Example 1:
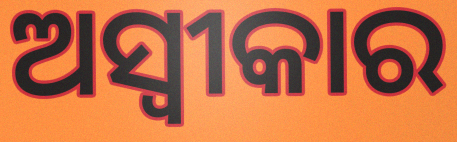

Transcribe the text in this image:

ଅସ୍ବୀକାର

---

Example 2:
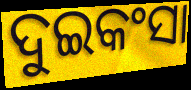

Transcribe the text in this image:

ଦୁଇକଂସା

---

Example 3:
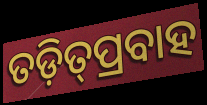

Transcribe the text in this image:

ତଡ଼ିତ୍‌ପ୍ରବାହ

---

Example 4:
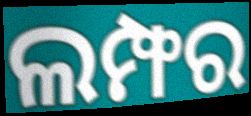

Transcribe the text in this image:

ଲମ୍ଫର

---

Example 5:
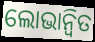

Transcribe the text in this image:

ଲୋଭାନ୍ୱିତ